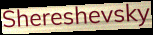
Shereshevsky